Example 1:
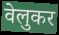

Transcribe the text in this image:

वेलुकर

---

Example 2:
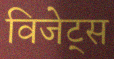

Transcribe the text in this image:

विजेट्स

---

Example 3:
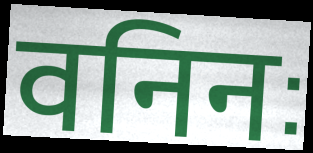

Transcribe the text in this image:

वनिनः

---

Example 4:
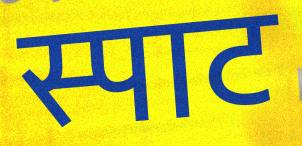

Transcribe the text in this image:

स्पाट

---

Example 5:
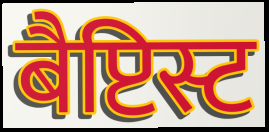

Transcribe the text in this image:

बैप्टिस्ट